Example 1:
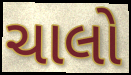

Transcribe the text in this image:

ચાલો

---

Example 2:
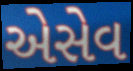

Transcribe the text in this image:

એસેવ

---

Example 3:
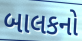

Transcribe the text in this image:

બાલકનો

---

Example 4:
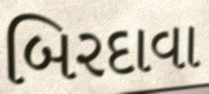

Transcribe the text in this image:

બિરદાવા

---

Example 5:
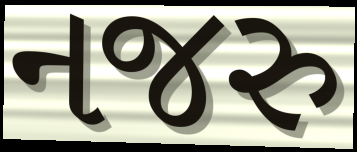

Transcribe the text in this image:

નજરુ